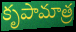
కృపామాత్ర